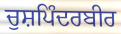
ਚੁਸ਼ਪਿੰਦਰਬੀਰ